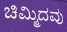
ಚಿಮ್ಮಿದವು